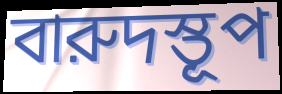
বারুদস্তূপ